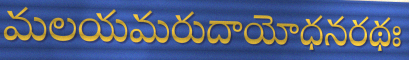
మలయమరుదాయోధనరథః